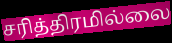
சரித்திரமில்லை